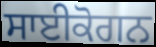
ਸਾਈਕੋਗਨ